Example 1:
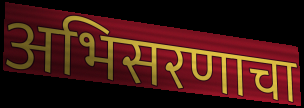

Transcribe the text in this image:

अभिसरणाचा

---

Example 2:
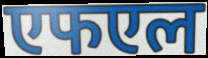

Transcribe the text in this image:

एफएल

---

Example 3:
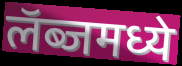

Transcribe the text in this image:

लॅब्जमध्ये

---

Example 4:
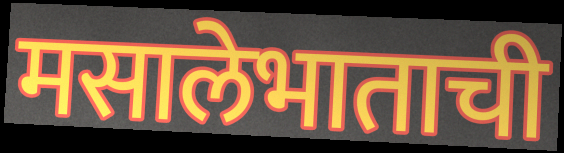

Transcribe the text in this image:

मसालेभाताची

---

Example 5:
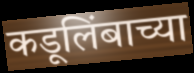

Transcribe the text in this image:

कडूलिंबाच्या